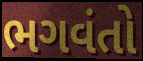
ભગવંતો